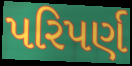
પરિપર્ણ